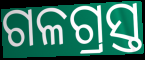
ଗଳଗ୍ରସ୍ତ